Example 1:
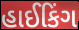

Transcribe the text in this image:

હાઈકિંગ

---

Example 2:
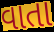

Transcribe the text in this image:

વાતા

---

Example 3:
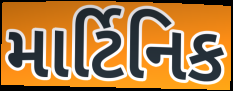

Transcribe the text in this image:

માર્ટિનિક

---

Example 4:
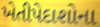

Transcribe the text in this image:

ખેતીપેદાશોના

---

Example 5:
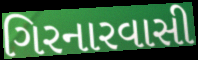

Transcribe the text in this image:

ગિરનારવાસી